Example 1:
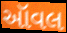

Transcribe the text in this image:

ઑવલ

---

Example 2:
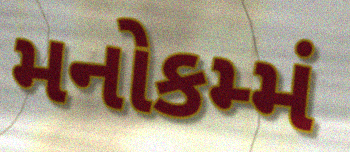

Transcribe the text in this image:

મનોકમ્મં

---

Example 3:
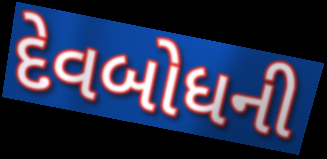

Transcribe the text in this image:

દેવબોધની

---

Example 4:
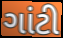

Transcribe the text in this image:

ગાંટી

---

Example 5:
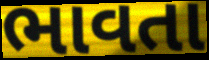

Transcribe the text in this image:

ભાવતા